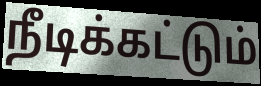
நீடிக்கட்டும்